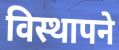
विस्थापने